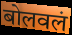
बोलवलं